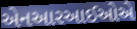
એનઆરઆઈઓએ